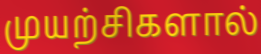
முயற்சிகளால்